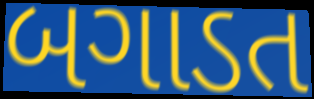
બગાડત